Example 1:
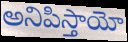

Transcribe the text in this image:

అనిపిస్తాయో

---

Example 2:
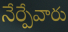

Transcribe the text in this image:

నేర్పేవారు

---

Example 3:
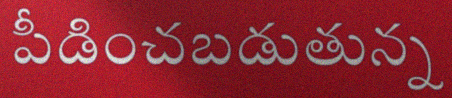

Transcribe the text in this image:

పీడించబడుతున్న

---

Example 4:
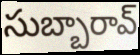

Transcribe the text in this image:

సుబ్బారావ్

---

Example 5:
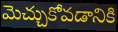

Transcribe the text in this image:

మెచ్చుకోవడానికి